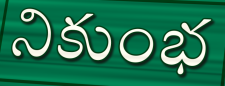
నికుంభ